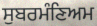
ਸੁਬਰਮੰਣਿਅਮ